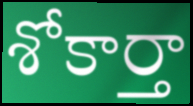
శోకార్తా